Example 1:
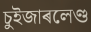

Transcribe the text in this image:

চুইজাৰলেণ্ড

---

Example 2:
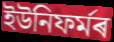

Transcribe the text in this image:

ইউনিফৰ্মৰ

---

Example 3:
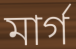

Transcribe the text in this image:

মাৰ্গ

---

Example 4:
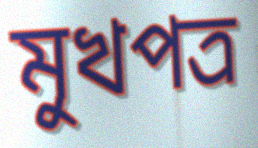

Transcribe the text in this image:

মুখপত্ৰ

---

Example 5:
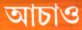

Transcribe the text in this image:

আচাও